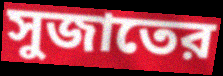
সুজাতের